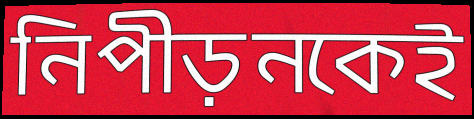
নিপীড়নকেই